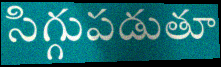
సిగ్గుపడుతూ